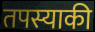
तपस्याकी